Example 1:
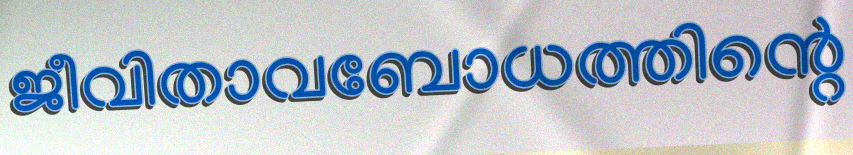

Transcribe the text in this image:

ജീവിതാവബോധത്തിന്റെ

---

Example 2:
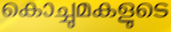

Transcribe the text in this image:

കൊച്ചുമകളുടെ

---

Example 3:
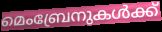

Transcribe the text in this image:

മെംബ്രേനുകൾക്ക്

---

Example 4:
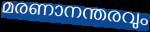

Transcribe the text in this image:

മരണാനന്തരവും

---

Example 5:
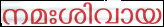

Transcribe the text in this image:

നമഃശിവായ